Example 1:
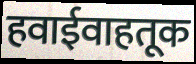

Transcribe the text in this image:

हवाईवाहतूक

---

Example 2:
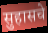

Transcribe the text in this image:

सुहासचे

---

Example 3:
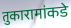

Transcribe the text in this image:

तुकारामांकडे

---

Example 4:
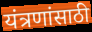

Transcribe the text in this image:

यंत्रणांसाठी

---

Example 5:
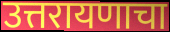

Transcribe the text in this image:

उत्तरायणाचा